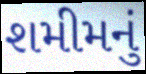
શમીમનું